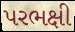
પરભક્ષી